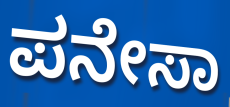
ಪನೇಸಾ